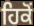
ਹਿਕੋਂ